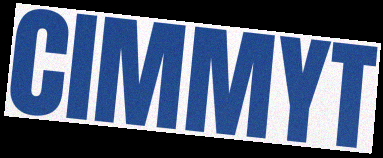
CIMMYT